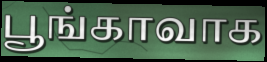
பூங்காவாக